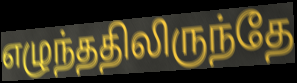
எழுந்ததிலிருந்தே